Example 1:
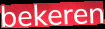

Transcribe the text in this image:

bekeren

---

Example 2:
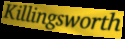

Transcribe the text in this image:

Killingsworth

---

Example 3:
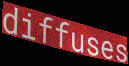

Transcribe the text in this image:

diffuses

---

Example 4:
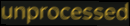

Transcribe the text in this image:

unprocessed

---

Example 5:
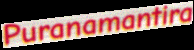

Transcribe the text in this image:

Puranamantira